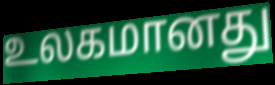
உலகமானது